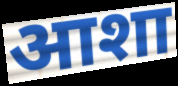
आशा